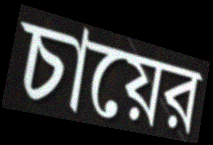
চায়ের